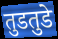
तुडतुडे